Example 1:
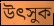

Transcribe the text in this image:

উৎসুক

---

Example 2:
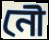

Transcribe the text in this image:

নৌ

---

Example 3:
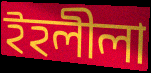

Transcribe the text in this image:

ইহলীলা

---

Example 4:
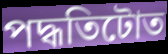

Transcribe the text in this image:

পদ্ধতিটোত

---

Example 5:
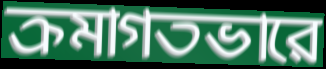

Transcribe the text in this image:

ক্ৰমাগতভাৱে